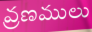
వ్రణములు